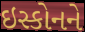
ઇસ્કોનને